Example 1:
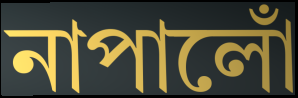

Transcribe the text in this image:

নাপালোঁ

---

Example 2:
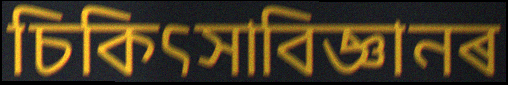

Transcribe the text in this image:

চিকিৎসাবিজ্ঞানৰ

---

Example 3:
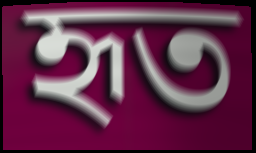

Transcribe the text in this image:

হৃত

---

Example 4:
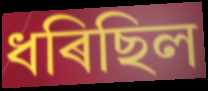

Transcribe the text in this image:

ধৰিছিল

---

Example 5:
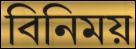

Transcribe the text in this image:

বিনিময়